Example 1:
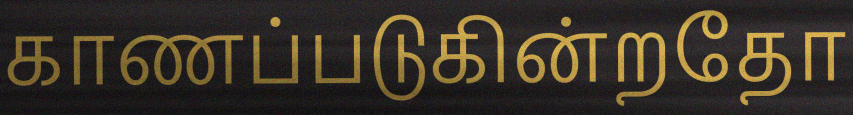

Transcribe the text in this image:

காணப்படுகின்றதோ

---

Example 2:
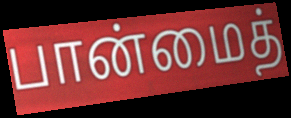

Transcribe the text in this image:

பான்மைத்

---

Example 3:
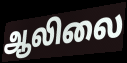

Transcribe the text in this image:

ஆலிலை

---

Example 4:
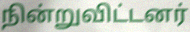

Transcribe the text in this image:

நின்றுவிட்டனர்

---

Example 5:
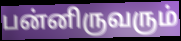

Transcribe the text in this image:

பன்னிருவரும்